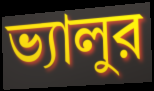
ভ্যালুর